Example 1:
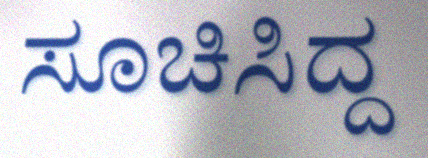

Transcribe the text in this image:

ಸೂಚಿಸಿದ್ದ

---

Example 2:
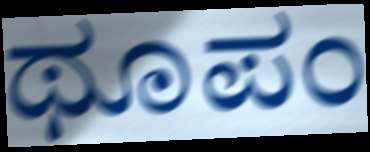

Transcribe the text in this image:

ಥೂಪಂ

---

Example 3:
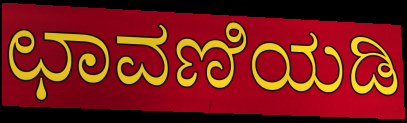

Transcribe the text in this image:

ಛಾವಣಿಯಡಿ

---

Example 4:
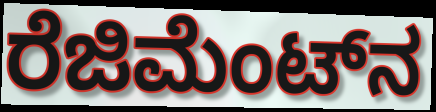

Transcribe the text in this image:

ರೆಜಿಮೆಂಟ್‌ನ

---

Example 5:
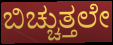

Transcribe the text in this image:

ಬಿಚ್ಚುತ್ತಲೇ